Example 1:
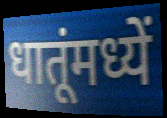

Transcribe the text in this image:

धातूंमध्यें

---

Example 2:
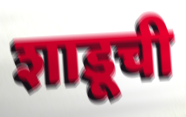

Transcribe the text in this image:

शाडूची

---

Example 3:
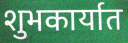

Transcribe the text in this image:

शुभकार्यात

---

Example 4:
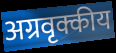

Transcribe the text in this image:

अग्रवृक्कीय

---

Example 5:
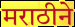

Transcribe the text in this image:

मराठीने